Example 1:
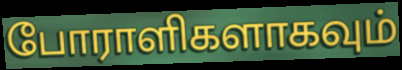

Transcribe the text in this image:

போராளிகளாகவும்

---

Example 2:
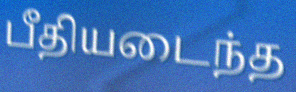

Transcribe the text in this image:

பீதியடைந்த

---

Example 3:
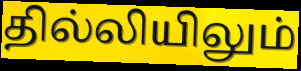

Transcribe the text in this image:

தில்லியிலும்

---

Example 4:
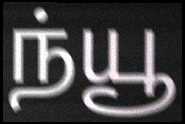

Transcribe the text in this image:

ந்யூ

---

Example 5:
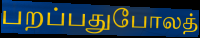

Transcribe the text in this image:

பறப்பதுபோலத்